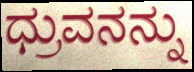
ಧ್ರುವನನ್ನು